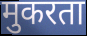
मुकरता